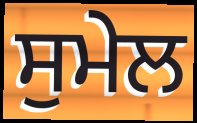
ਸੁਮੇਲ